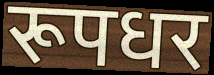
रूपधर